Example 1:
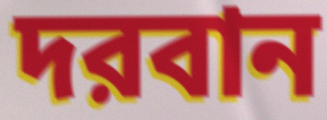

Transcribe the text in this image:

দরবান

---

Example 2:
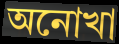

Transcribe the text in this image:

অনোখা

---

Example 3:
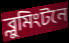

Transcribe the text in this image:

ব্লুমিংটনে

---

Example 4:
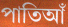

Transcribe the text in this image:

পাতিআঁ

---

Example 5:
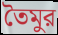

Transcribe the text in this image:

তৈমুর